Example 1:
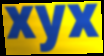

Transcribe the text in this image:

xyx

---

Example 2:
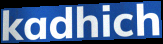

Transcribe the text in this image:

kadhich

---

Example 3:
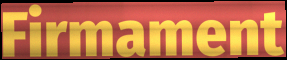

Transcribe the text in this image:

Firmament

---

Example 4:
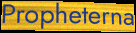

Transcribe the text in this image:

Propheterna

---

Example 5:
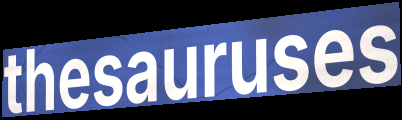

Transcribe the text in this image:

thesauruses